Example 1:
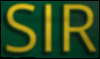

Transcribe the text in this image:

SIR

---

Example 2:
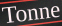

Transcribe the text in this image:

Tonne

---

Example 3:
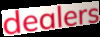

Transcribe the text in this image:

dealers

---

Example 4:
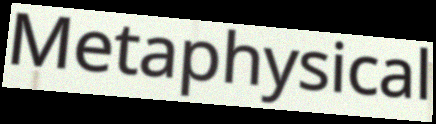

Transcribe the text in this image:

Metaphysical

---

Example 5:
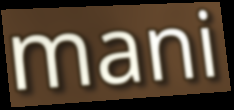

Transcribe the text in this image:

mani